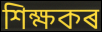
শিক্ষকৰ